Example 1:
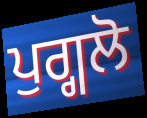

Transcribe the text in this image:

ਪੁਗ੍ਗਲੋ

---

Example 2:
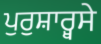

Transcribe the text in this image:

ਪੁਰੁਸ਼ਾਰ੍ਥਸੇ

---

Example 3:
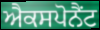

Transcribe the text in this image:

ਐਕਸਪੋਨੈਂਟ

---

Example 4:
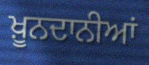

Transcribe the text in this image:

ਖ਼ੂਨਦਾਨੀਆਂ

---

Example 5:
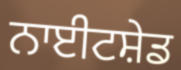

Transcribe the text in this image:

ਨਾਈਟਸ਼ੇਡ